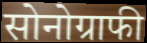
सोनोग्राफी